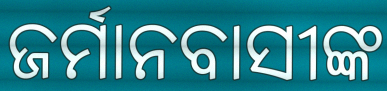
ଜର୍ମାନବାସୀଙ୍କ